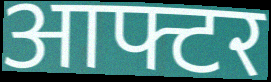
आफ्टर